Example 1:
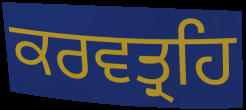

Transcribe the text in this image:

ਕਰਵਤ੍ਰਹਿ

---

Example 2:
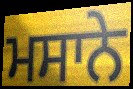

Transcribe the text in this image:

ਮਸਾਨੇ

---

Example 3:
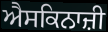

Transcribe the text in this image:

ਐਸਕਿਨਾਜ਼ੀ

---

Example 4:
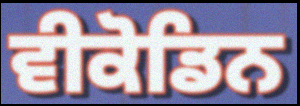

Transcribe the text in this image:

ਵੀਕੋਡਿਨ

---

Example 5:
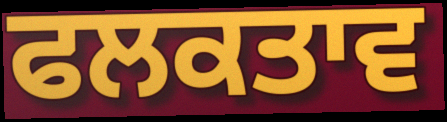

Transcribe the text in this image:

ਫਲਕਤਾਵ